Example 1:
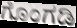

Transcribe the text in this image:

ಗೊಂಗಡಿ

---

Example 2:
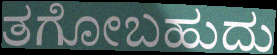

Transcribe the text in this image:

ತಗೋಬಹುದು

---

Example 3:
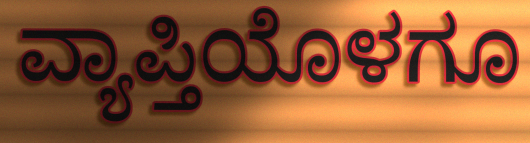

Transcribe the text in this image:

ವ್ಯಾಪ್ತಿಯೊಳಗೂ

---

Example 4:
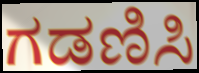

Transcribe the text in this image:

ಗಡಣಿಸಿ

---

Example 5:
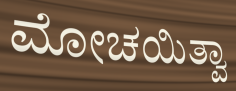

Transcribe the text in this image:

ಮೋಚಯಿತ್ವಾ